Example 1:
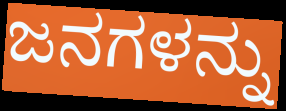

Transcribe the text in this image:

ಜನಗಳನ್ನು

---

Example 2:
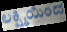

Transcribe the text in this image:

ಲಕ್ಷ್ಮಿಯಿಂದ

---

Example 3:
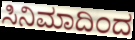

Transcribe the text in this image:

ಸಿನಿಮಾದಿಂದ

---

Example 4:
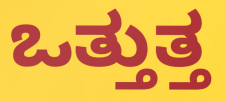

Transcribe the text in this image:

ಒತ್ತುತ್ತ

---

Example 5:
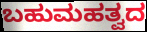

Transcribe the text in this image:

ಬಹುಮಹತ್ವದ